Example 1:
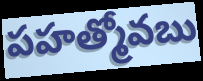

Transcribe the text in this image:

పహత్మోవబు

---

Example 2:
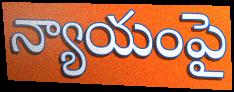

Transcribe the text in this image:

న్యాయంపై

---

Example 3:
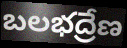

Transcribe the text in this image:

బలభద్రేణ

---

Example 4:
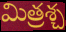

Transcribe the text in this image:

మిత్రశ్చ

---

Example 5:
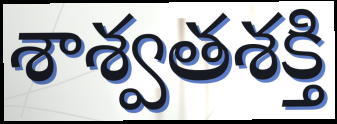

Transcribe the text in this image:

శాశ్వతశక్తి